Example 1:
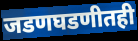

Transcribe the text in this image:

जडणघडणीतही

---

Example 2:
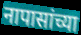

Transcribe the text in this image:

नापासांच्या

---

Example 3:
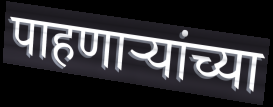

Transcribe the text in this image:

पाहणार्‍यांच्या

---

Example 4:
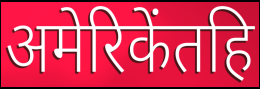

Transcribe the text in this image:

अमेरिकेंतहि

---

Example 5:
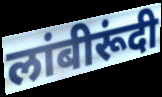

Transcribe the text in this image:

लांबीरूंदी